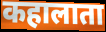
कहालाता